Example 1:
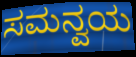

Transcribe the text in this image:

ಸಮನ್ವಯ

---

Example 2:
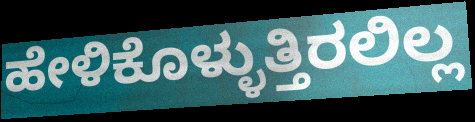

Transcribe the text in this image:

ಹೇಳಿಕೊಳ್ಳುತ್ತಿರಲಿಲ್ಲ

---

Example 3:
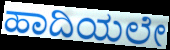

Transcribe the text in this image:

ಹಾದಿಯಲೇ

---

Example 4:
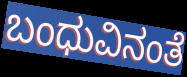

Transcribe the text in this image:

ಬಂಧುವಿನಂತೆ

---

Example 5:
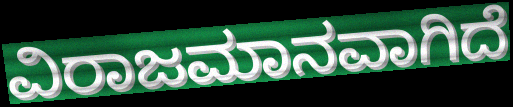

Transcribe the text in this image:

ವಿರಾಜಮಾನವಾಗಿದೆ